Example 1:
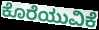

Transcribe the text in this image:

ಕೊರೆಯುವಿಕೆ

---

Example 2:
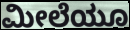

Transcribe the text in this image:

ಮೀಲೆಯೂ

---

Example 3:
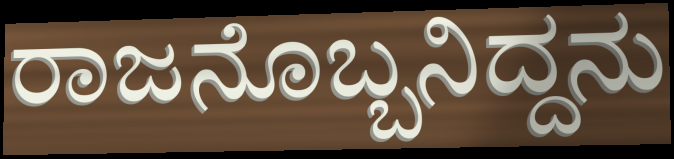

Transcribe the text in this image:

ರಾಜನೊಬ್ಬನಿದ್ದನು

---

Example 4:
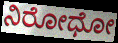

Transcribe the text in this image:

ನಿರೋಧೋ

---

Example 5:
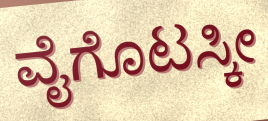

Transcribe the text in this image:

ವೈಗೊಟಸ್ಕೀ